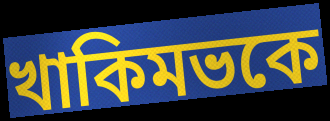
খাকিমভকে